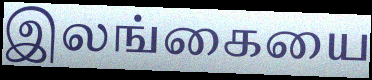
இலங்கையை